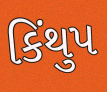
કિંથુપ